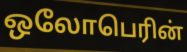
ஒலோபெரின்